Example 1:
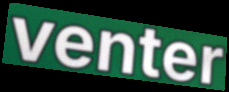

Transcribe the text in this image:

venter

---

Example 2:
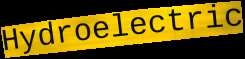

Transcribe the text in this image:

Hydroelectric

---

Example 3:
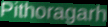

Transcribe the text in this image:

Pithoragarh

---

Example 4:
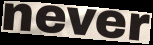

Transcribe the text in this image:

never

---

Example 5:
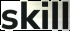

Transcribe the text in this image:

skill